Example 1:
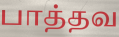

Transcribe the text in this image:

பாத்தவ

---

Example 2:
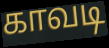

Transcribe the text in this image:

காவடி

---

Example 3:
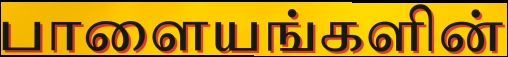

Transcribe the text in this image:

பாளையங்களின்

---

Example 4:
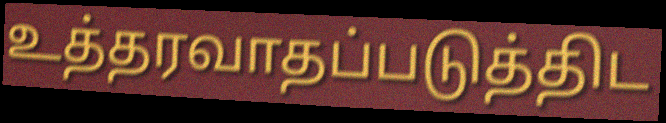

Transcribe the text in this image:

உத்தரவாதப்படுத்திட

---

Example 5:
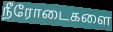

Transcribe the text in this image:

நீரோடைகளை